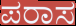
ಪರಾಸ